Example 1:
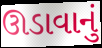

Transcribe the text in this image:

ઊડાવાનું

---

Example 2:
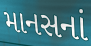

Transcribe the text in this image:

માનસનાં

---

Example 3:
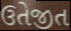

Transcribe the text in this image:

ઉતેજીત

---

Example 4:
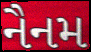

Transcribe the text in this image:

નૈનમ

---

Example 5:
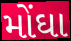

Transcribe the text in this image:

મોંઘા